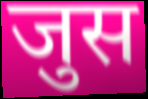
जुस